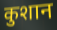
कुशान